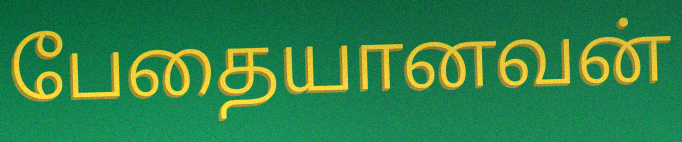
பேதையானவன்